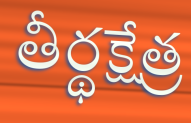
తీర్థక్షేత్ర